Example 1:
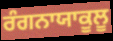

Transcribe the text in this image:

ਰੰਗਨਾਯਾਕੂਲੂ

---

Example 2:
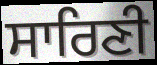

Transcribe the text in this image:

ਸਾਰਿਣੀ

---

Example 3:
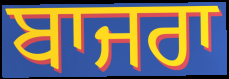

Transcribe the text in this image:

ਬਾਜਰਾ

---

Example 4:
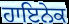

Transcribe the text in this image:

ਹਾਇਨੇਕ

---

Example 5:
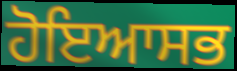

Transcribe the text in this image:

ਹੋਇਆਸਭ